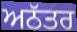
ਅਠੱਤਰ